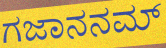
ಗಜಾನನಮ್